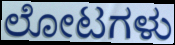
ಲೋಟಗಳು